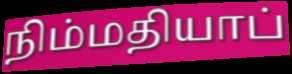
நிம்மதியாப்